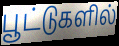
பூட்டுகளில்